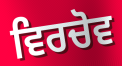
ਵਿਰਚੋਵ